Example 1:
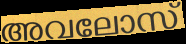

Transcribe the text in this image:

അവലോസ്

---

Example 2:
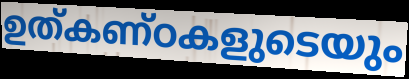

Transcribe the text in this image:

ഉത്കണ്ഠകളുടെയും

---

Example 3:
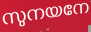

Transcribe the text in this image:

സുനയനേ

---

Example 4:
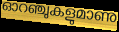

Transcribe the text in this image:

ഓറഞ്ചുകളുമാണു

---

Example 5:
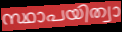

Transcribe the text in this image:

സ്ഥാപയിത്വാ